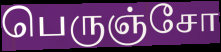
பெருஞ்சோ